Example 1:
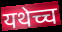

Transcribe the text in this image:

यथेच्च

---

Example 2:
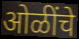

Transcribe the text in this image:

ओळींचे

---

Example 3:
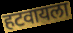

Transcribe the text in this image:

हटवायला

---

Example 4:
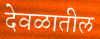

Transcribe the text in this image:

देवळातील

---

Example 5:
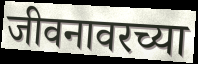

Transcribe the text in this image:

जीवनावरच्या